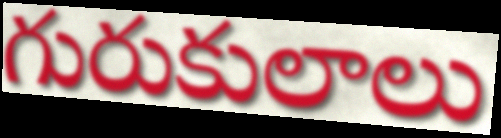
గురుకులాలు